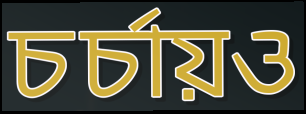
চর্চায়ও